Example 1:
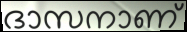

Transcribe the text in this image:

ദാസനാണ്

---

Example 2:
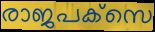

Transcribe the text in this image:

രാജപക്‌സെ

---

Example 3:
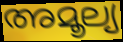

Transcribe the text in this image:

അമൂല്യ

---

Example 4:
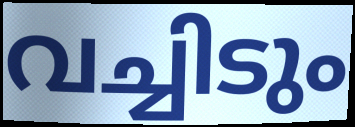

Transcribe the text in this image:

വച്ചിടും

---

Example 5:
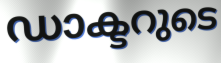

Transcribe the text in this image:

ഡാക്ടറുടെ